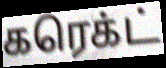
கரெக்ட்